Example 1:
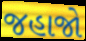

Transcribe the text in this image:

જહાજો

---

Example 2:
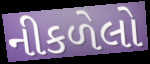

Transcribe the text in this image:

નીકળેલો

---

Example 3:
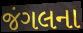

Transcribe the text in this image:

જંગલના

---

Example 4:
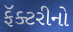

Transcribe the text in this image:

ફૅક્ટરીનો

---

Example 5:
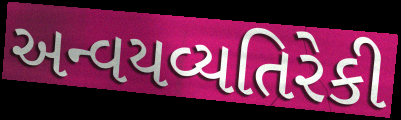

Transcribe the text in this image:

અન્વયવ્યતિરેકી